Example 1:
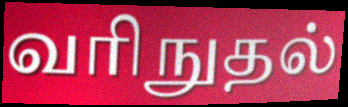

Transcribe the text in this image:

வரிநுதல்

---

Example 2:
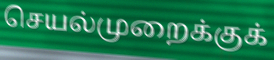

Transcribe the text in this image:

செயல்முறைக்குக்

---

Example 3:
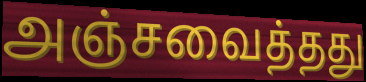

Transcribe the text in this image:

அஞ்சவைத்தது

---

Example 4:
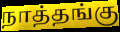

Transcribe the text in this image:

நாத்தங்கு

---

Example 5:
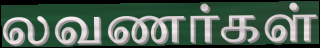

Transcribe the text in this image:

லவணர்கள்